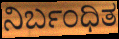
ನಿರ್ಬಂಧಿತ